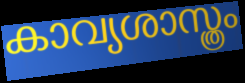
കാവ്യശാസ്ത്രം